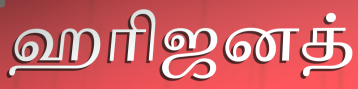
ஹரிஜனத்